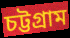
চট্টগ্ৰাম